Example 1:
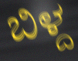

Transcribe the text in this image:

ಬಿಳ್ದ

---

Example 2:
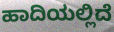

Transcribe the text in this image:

ಹಾದಿಯಲ್ಲಿದೆ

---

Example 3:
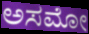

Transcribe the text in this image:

ಅಸಮೋ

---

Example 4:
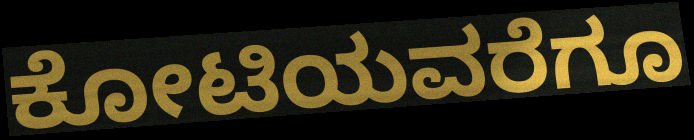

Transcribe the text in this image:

ಕೋಟಿಯವರೆಗೂ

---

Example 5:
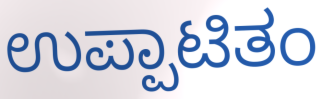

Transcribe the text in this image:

ಉಪ್ಪಾಟಿತಂ